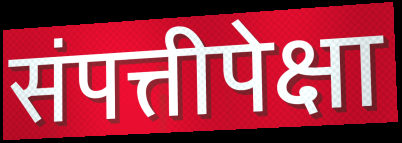
संपत्तीपेक्षा